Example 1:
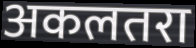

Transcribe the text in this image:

अकलतरा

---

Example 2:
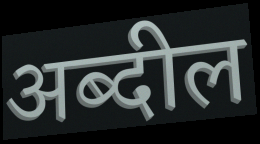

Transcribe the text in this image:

अब्दील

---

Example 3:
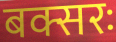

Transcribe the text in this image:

बक्सरः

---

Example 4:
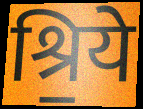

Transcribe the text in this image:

श्रि॒ये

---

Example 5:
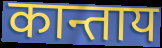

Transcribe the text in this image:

कान्ताय